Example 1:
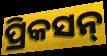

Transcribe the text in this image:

ପ୍ରିକସନ୍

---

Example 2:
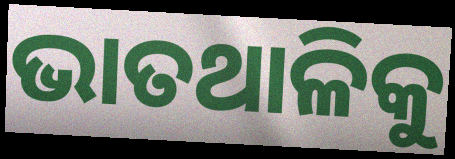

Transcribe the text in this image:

ଭାତଥାଳିକୁ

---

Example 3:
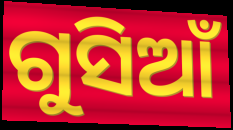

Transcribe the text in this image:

ଗୁସିଆଁ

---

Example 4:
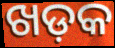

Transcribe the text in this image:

ଖଡ଼କ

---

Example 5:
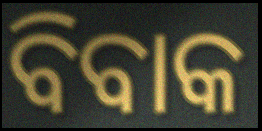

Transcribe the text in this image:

ବିବାକ